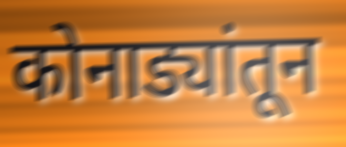
कोनाड्यांतून